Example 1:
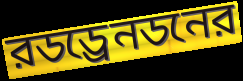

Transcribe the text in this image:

রডড্রেনডনের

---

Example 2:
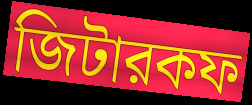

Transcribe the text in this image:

জিটারকফ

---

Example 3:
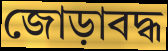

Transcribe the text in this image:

জোড়াবদ্ধ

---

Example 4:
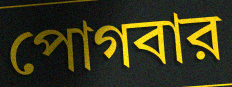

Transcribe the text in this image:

পোগবার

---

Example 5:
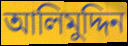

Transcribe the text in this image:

আলিমুদ্দিন